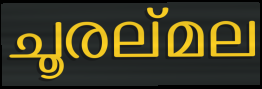
ചൂരല്മല